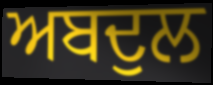
ਅਬਦੁਲ